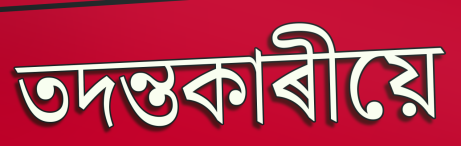
তদন্তকাৰীয়ে